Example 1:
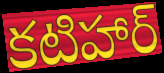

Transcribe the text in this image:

కటిహార్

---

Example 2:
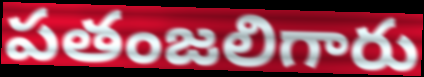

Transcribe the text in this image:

పతంజలిగారు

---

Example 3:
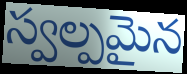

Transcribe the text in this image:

స్వల్పమైన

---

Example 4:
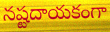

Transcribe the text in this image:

నష్టదాయకంగా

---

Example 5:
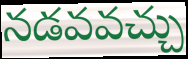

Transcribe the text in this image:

నడవవచ్చు